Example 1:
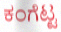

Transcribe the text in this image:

ಕಂಗೆಟ್ಟ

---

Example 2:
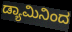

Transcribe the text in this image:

ಡ್ಯಾಮಿನಿಂದ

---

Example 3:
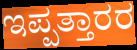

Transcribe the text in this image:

ಇಪ್ಪತ್ತಾರರ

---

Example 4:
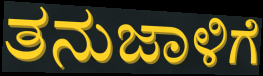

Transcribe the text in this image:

ತನುಜಾಳಿಗೆ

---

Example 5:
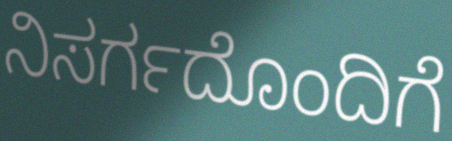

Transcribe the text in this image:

ನಿಸರ್ಗದೊಂದಿಗೆ